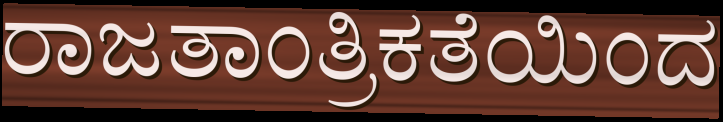
ರಾಜತಾಂತ್ರಿಕತೆಯಿಂದ